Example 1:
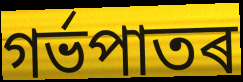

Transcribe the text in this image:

গৰ্ভপাতৰ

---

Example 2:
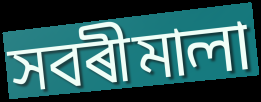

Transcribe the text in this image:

সবৰীমালা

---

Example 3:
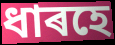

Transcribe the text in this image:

ধাৰহে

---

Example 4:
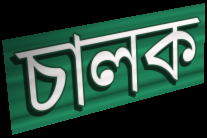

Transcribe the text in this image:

চালক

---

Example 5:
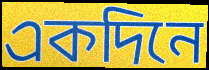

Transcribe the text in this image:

একদিনে